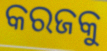
କରଜକୁ